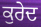
ਕੁਰੇਦ